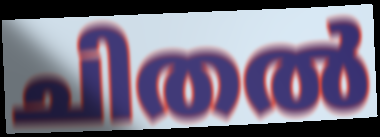
ചിതൽ